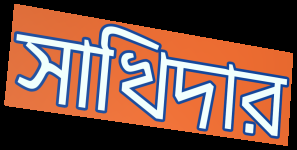
সাখিদার